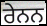
ਰੇਨਨ